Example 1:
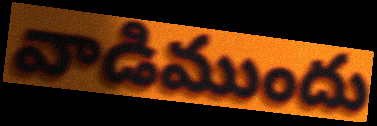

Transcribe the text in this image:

వాడిముందు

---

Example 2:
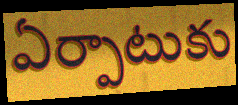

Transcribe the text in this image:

ఏర్పాటుకు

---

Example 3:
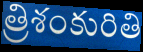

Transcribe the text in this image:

త్రిశంకురితి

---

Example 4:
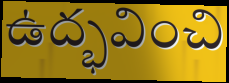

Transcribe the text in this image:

ఉద్భవించి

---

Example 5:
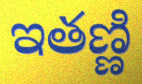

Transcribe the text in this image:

ఇతణ్ణి